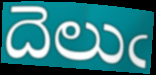
దెలుఁ